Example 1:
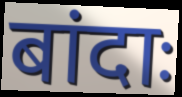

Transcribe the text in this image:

बांदाः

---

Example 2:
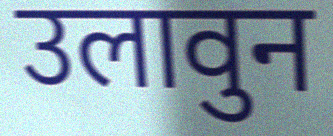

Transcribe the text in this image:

उलावुन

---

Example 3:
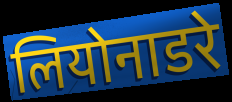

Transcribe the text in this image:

लियोनाडरे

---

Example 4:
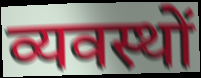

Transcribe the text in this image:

व्यवस्थों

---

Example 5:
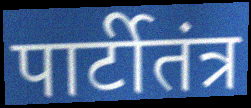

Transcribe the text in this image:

पार्टीतंत्र